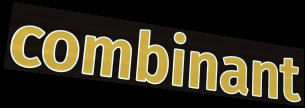
combinant